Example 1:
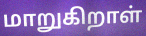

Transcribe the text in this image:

மாறுகிறாள்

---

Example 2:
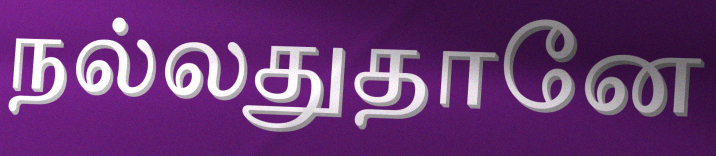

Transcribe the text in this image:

நல்லதுதானே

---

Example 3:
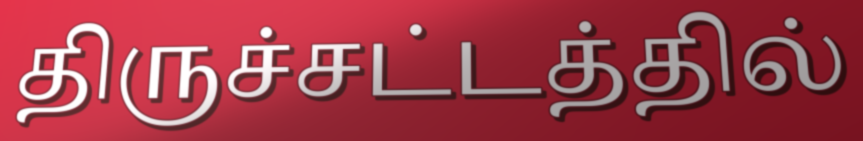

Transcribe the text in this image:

திருச்சட்டத்தில்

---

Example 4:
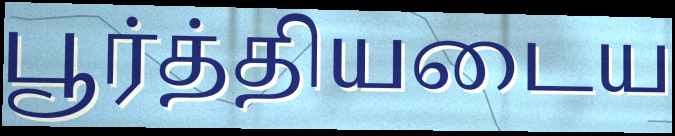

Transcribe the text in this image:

பூர்த்தியடைய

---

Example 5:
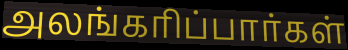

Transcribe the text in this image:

அலங்கரிப்பார்கள்